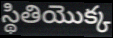
స్థితియొక్క